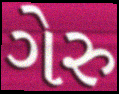
ગેરુ